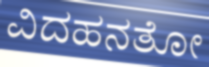
ವಿದಹನತೋ